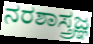
ನರಶಾಸ್ತ್ರಜ್ಞ